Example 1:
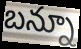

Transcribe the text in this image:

బన్నూ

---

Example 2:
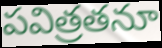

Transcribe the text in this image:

పవిత్రతనూ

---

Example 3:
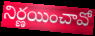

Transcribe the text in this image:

నిర్ణయించావో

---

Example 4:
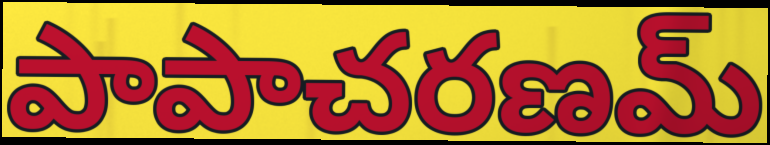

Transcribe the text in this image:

పాపాచరణమ్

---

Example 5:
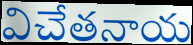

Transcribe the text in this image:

విచేతనాయ